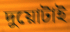
দুয়োটাই